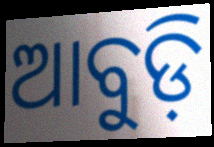
ଆବୁଡ଼ି